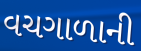
વચગાળાની